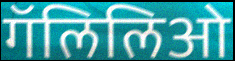
गॅलिलिओ